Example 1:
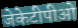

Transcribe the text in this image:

जेकेटीपीओ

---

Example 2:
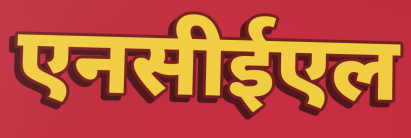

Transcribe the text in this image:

एनसीईएल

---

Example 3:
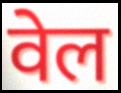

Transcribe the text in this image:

वेल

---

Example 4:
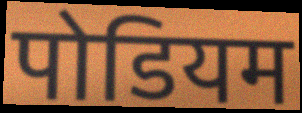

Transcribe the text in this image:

पोडियम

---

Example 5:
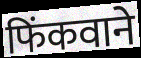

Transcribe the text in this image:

फिंकवाने